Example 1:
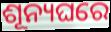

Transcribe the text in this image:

ଶୂନ୍ୟଘରେ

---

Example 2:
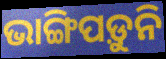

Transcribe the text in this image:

ଭାଙ୍ଗିପଡ଼ୁନି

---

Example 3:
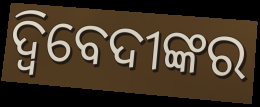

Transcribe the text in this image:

ଦ୍ଵିବେଦୀଙ୍କର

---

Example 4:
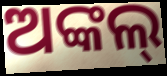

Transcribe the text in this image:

ଅଙ୍କଲ୍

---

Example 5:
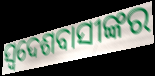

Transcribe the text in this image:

ସ୍ୱଦେଶବାସୀଙ୍କର